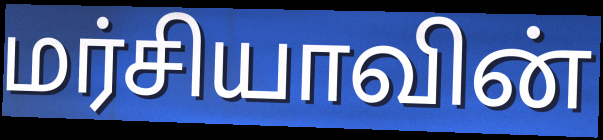
மர்சியாவின்